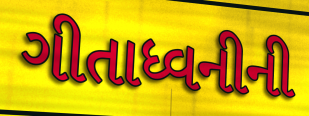
ગીતાધ્વનીની